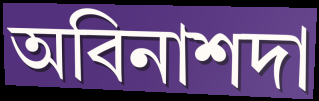
অবিনাশদা